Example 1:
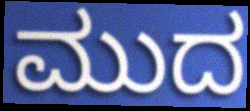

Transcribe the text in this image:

ಮುದ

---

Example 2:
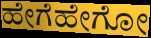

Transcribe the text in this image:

ಹೇಗೆಹೇಗೋ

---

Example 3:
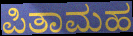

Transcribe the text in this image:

ಪಿತಾಮಹ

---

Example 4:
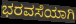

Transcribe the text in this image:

ಭರವಸೆಯಾಗಿ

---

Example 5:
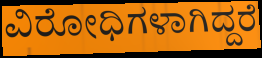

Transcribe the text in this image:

ವಿರೋಧಿಗಳಾಗಿದ್ದರೆ